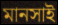
মানসাই